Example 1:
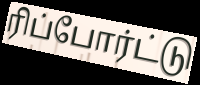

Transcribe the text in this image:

ரிப்போர்ட்டு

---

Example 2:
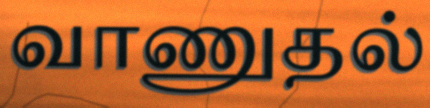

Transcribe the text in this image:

வாணுதல்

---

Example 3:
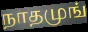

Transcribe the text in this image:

நாதமுங்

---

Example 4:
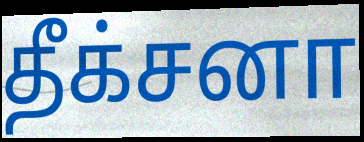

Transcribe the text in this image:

தீக்சனா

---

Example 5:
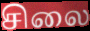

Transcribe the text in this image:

சிலை